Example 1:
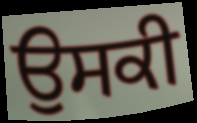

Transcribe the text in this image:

ਉਸਕੀ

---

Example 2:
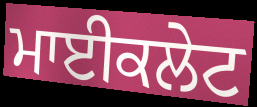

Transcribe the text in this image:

ਮਾਈਕਲੇਟ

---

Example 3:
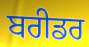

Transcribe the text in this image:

ਬਰੀਡਰ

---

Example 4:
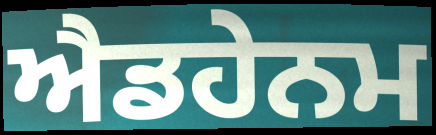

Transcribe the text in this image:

ਐਡਹੇਨਮ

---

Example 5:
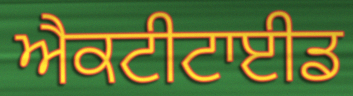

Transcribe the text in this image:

ਐਕਟੀਟਾਈਡ